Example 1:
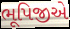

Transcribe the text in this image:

ભૂપિજીએ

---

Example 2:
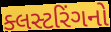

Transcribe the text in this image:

ક્લસ્ટરિંગનો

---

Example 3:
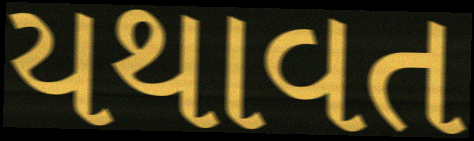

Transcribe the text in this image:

યથાવત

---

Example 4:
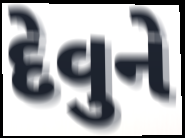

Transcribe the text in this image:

દેવુને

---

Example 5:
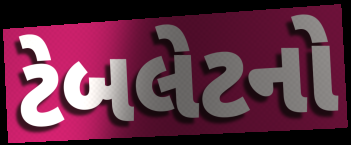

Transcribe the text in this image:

ટેબલેટનો